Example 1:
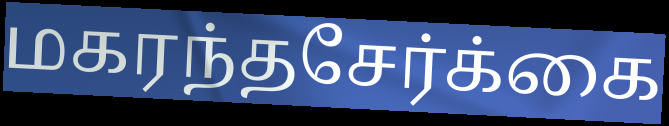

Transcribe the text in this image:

மகரந்தசேர்க்கை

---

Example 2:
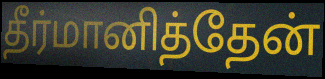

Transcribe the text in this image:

தீர்மானித்தேன்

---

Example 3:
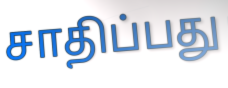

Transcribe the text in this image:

சாதிப்பது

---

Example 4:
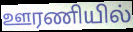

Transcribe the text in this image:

ஊரணியில்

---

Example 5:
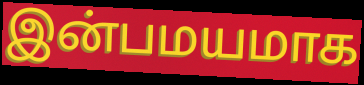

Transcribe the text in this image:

இன்பமயமாக